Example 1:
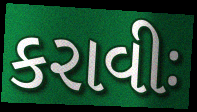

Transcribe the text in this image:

કરાવીઃ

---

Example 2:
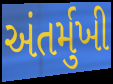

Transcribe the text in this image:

અંતર્મુખી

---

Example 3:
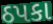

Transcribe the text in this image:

ઠપકા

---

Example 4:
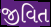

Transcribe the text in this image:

જીવિત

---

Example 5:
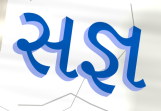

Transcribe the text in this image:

સજ્ઞ